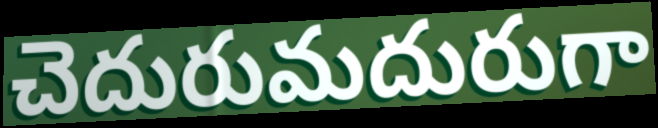
చెదురుమదురుగా